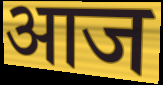
आज